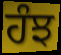
ਹੰਝ